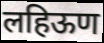
लहिऊण